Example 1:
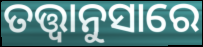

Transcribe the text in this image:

ତତ୍ତ୍ୱାନୁସାରେ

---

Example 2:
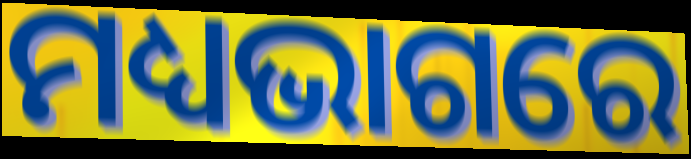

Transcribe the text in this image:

ମଧ୍ୟଭାଗରେ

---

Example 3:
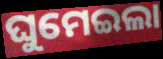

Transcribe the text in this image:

ଘୁମେଇଲା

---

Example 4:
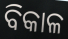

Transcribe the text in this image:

ବିକାଳ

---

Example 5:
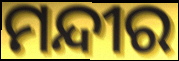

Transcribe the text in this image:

ମନ୍ଦୀର